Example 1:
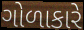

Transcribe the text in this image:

ગોળાકારે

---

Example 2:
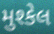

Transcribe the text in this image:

મુશ્કેલ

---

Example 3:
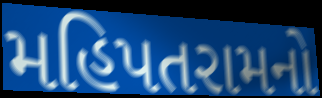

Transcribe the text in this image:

મહિપતરામનો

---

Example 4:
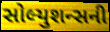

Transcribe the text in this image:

સોલ્યુશન્સની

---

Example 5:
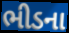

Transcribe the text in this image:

ભીડના